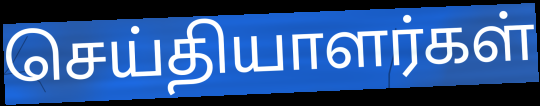
செய்தியாளர்கள்